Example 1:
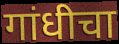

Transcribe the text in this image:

गांधीचा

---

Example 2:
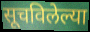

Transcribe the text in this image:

सूचविलेल्या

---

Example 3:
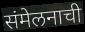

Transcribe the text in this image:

संमेलनाची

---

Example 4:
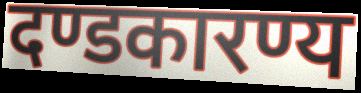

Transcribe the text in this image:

दण्डकारण्य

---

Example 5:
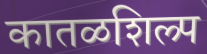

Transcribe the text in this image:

कातळशिल्प